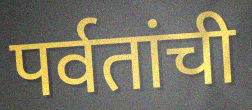
पर्वतांची